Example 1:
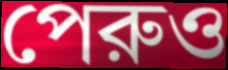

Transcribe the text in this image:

পেরুও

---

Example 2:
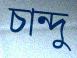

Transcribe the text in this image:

চান্দু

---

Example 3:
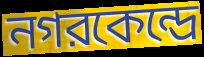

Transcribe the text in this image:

নগরকেন্দ্রে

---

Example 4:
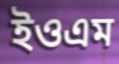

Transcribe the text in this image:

ইওএম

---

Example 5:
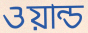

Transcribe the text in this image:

ওয়ান্ড